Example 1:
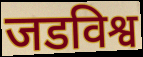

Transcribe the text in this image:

जडविश्व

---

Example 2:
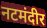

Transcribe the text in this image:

नटमंदीर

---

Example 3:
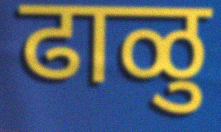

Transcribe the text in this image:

ढाळु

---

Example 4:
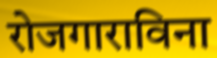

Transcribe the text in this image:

रोजगाराविना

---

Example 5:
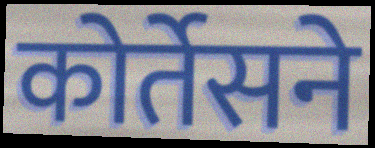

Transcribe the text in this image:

कोर्तेसने